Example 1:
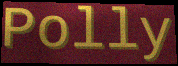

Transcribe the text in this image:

Polly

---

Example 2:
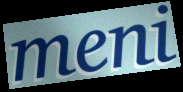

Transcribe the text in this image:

meni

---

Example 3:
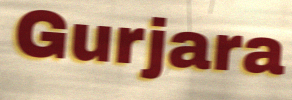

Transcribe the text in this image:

Gurjara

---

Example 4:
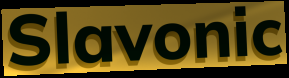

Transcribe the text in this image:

Slavonic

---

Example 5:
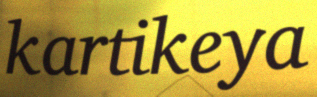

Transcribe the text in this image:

kartikeya